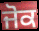
ਜੋਕ